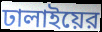
ঢালাইয়ের